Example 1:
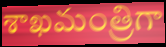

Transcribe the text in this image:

శాఖమంత్రిగా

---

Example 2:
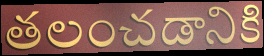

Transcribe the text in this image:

తలంచడానికి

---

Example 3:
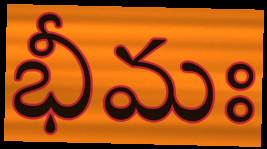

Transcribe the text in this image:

భీమః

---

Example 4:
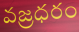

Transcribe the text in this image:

వజ్రధరం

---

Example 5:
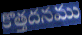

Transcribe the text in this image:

కొత్తదనము